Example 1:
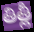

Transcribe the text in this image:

తిత్లీ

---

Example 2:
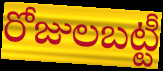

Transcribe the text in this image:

రోజులబట్టీ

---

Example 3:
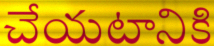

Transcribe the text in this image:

చేయటానికి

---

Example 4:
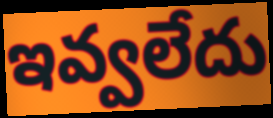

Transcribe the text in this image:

ఇవ్వలేదు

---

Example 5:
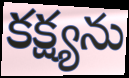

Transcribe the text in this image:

కక్ష్యను